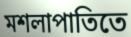
মশলাপাতিতে